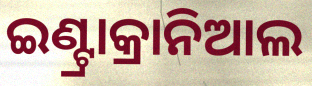
ଇଣ୍ଟ୍ରାକ୍ରାନିଆଲ